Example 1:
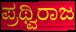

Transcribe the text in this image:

ಪ್ರಥ್ವಿರಾಜ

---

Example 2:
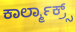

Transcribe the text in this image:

ಕಾರ್ಲ್ಮಾಕ್ರ್ಸ್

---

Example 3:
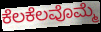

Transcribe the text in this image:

ಕೆಲಕೆಲವೊಮ್ಮೆ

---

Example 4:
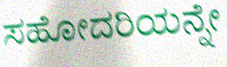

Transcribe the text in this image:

ಸಹೋದರಿಯನ್ನೇ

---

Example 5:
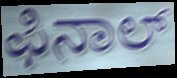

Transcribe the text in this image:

ಫಿನಾಲ್